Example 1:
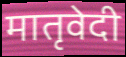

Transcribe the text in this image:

मातृवेदी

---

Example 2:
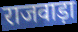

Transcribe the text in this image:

राजवाड़ा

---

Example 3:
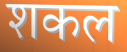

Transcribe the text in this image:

शकल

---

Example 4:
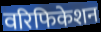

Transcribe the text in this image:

वरिफिकेशन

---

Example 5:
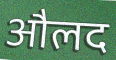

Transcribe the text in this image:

औलद